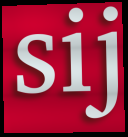
sij